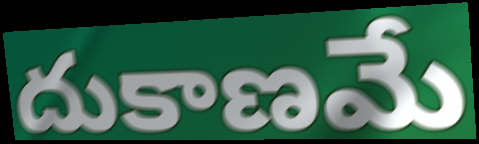
దుకాణమే